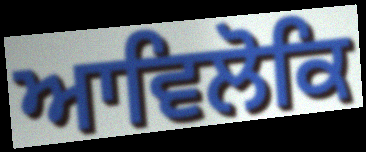
ਆਵਿਲੋਕਿ